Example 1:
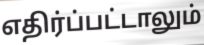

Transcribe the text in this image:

எதிர்ப்பட்டாலும்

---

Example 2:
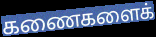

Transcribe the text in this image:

கணைகளைக்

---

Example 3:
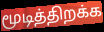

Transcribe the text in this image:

மூடித்திறக்க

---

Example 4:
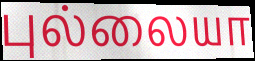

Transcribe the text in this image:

புல்லையா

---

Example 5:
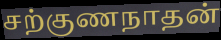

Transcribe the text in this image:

சற்குணநாதன்